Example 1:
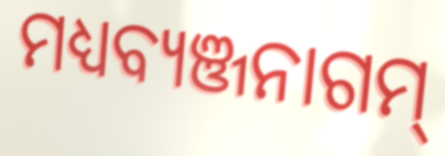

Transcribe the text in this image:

ମଧ୍ୟବ୍ୟଞ୍ଜନାଗମ୍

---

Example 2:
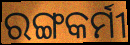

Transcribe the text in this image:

ରଙ୍ଗକର୍ମୀ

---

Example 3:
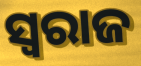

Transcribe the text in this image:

ସ୍ଵରାଜ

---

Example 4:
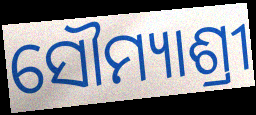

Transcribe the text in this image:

ସୌମ୍ୟାଶ୍ରୀ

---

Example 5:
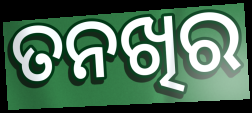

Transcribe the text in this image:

ତନଖିର